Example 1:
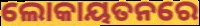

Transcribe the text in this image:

ଲୋକାୟତନରେ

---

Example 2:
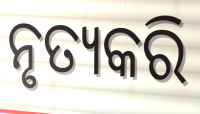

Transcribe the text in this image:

ନୃତ୍ୟକରି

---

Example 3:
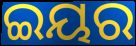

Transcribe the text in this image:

ଇୟର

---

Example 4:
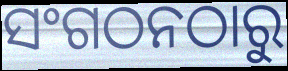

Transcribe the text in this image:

ସଂଗଠନଠାରୁ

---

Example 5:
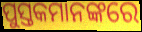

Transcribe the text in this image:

ପୁସ୍ତକମାନଙ୍କରେ